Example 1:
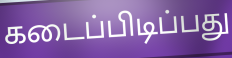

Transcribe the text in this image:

கடைப்பிடிப்பது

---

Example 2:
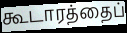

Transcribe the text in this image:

கூடாரத்தைப்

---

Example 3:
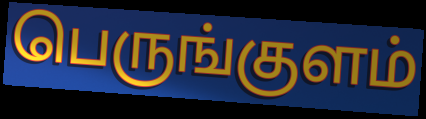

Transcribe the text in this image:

பெருங்குளம்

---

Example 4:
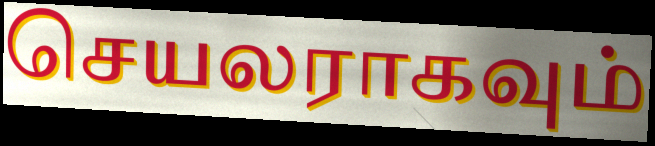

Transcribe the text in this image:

செயலராகவும்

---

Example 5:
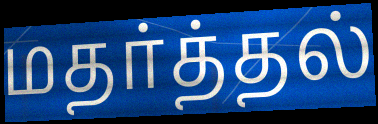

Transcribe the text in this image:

மதர்த்தல்